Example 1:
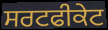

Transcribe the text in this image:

ਸਰਟਫੀਕੇਟ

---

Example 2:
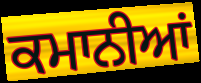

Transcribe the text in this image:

ਕਮਾਨੀਆਂ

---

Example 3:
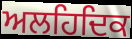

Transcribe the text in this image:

ਅਲਹਿਦਿਕ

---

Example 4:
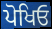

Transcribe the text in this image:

ਪੋਖਿਓ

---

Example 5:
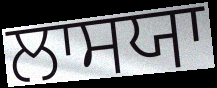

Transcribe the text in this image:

ਲਾਸਯਾ